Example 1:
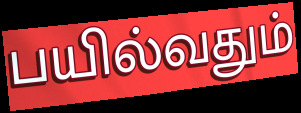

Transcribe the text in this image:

பயில்வதும்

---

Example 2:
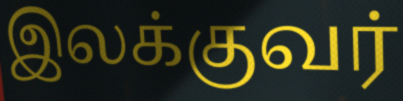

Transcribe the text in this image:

இலக்குவர்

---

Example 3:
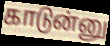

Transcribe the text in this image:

காடுன்னு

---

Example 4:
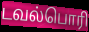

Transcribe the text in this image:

டவல்பொரி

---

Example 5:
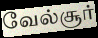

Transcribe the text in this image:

வேல்சூர்